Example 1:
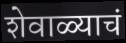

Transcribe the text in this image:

शेवाळ्याचं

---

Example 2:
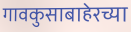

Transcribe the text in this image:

गावकुसाबाहेरच्या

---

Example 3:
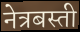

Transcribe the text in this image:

नेत्रबस्ती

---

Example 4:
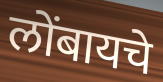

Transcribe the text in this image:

लोंबायचे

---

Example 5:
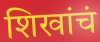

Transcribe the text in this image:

शिखांचं